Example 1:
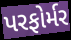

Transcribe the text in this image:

પરફોર્મર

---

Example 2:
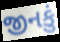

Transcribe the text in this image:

જીનકું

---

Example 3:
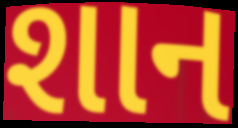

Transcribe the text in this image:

શાન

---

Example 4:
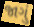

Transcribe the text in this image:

જાગું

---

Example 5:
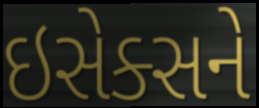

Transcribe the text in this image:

ઇસેક્સને